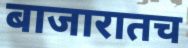
बाजारातच